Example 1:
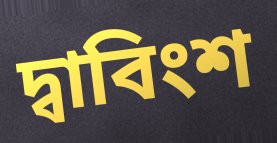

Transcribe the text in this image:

দ্বাবিংশ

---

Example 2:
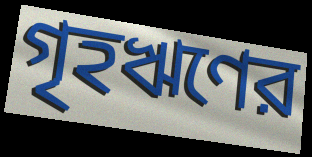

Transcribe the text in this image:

গৃহঋণের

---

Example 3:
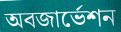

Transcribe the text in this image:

অবজার্ভেশন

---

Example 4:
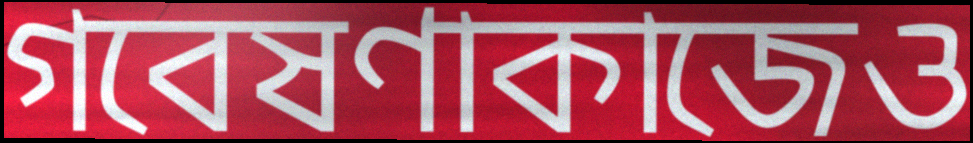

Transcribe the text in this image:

গবেষণাকাজেও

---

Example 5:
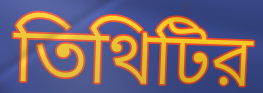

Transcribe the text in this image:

তিথিটির